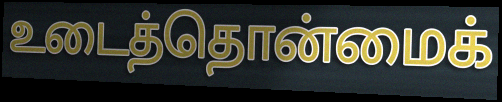
உடைத்தொன்மைக்